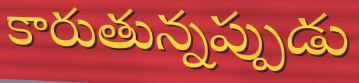
కారుతున్నప్పుడు